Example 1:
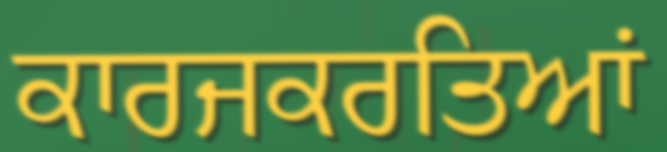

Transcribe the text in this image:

ਕਾਰਜਕਰਤਿਆਂ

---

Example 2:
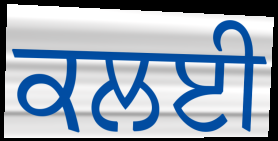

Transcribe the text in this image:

ਕਲਈ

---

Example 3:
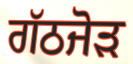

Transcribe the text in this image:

ਗੱਠਜੋੜ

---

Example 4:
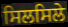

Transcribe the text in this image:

ਸਿਲਸਿਲੇ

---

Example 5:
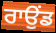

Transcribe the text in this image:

ਰਾਉਂਡ